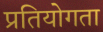
प्रतियोगता